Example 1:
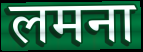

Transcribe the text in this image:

लमना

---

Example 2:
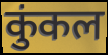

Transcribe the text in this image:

कुंकल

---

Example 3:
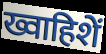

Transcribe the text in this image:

ख्वाहिशें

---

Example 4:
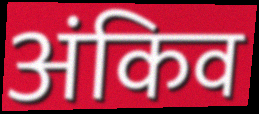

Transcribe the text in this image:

अंकिव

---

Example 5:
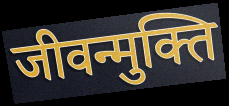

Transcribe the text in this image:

जीवन्मुक्ति